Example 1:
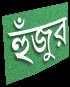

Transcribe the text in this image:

হুঁজুর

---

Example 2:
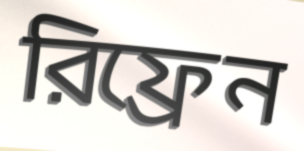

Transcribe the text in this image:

রিফ্রেন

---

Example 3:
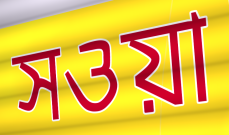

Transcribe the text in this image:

সওয়া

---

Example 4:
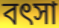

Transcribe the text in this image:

বৎসা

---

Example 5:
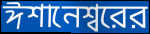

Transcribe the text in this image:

ঈশানেশ্বরের